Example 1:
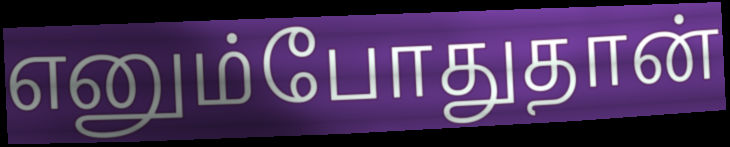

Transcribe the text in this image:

எனும்போதுதான்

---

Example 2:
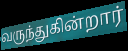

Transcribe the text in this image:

வருந்துகின்றார்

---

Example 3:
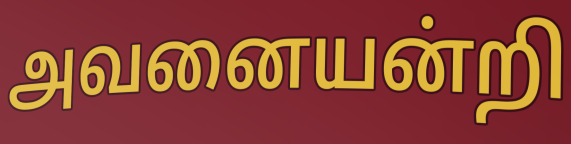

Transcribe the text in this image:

அவனையன்றி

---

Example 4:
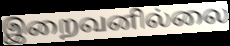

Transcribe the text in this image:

இறைவனில்லை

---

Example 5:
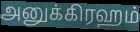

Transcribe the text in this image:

அனுக்கிரஹம்